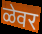
ळेवर